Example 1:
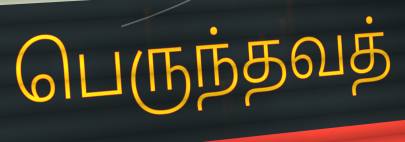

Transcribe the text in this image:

பெருந்தவத்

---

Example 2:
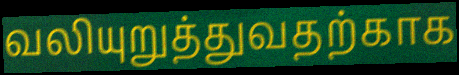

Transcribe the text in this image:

வலியுறுத்துவதற்காக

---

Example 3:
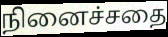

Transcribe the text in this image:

நினைச்சதை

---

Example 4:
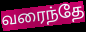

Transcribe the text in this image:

வரைந்தே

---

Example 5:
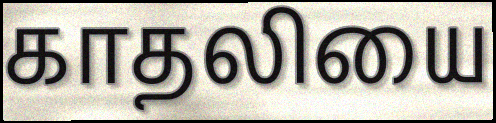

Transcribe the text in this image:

காதலியை